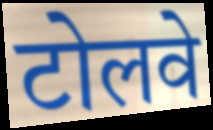
टोलवे